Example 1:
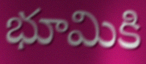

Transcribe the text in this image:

భూమికి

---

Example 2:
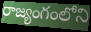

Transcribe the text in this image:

రాజ్యంగంలోని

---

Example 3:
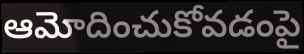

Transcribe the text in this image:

ఆమోదించుకోవడంపై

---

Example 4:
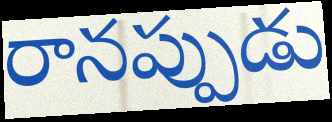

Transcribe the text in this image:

రానప్పుడు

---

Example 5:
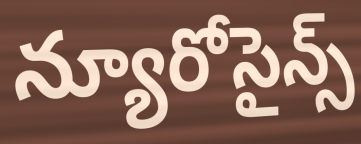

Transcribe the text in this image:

న్యూరోసైన్స్